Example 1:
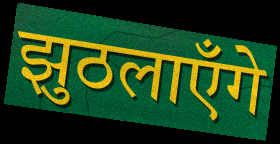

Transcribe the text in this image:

झुठलाएँगे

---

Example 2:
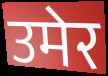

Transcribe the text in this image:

उमेर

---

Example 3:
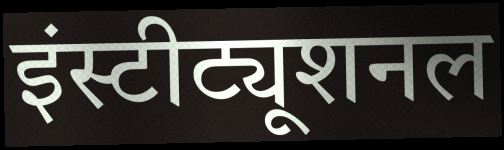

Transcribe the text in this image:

इंस्टीट्यूशनल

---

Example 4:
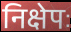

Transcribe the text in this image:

निक्षेपः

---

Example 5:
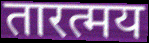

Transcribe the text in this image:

तारत्मय